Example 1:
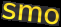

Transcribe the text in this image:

smo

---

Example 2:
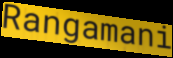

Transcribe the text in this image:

Rangamani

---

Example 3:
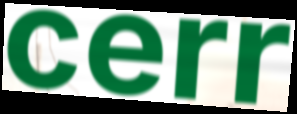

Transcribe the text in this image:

cerr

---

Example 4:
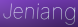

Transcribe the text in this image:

Jeniang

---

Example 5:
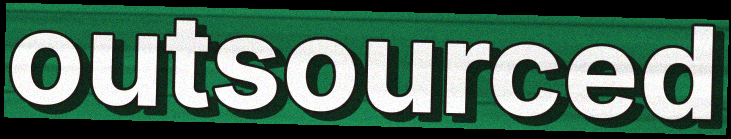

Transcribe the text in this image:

outsourced